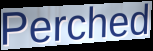
Perched